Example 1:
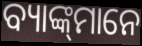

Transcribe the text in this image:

ବ୍ୟାଙ୍କ୍‌ମାନେ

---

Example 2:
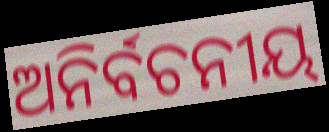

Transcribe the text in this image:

ଅନିର୍ବଚନୀୟ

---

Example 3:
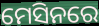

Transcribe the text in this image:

ମେସିନରେ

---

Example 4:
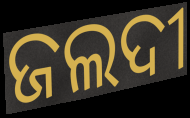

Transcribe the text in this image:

ଜଲଦୀ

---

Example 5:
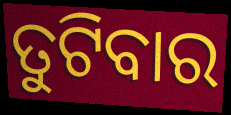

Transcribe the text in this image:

ତୁଟିବାର